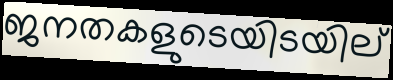
ജനതകളുടെയിടയില്